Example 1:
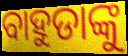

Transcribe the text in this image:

ବାହୁଡାଙ୍କୁ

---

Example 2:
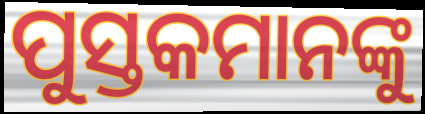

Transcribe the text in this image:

ପୁସ୍ତକମାନଙ୍କୁ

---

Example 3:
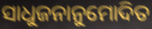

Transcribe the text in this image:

ସାଧୁଜନାନୁମୋଦିତ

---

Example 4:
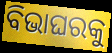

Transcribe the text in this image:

ବିଭାଘରକୁ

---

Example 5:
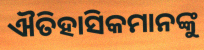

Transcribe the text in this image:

ଐତିହାସିକମାନଙ୍କୁ